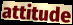
attitude